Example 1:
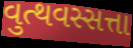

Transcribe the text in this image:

વુત્થવસ્સત્તા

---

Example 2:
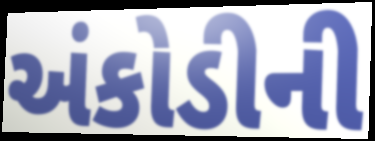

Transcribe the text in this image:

અંકોડીની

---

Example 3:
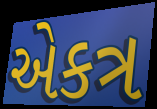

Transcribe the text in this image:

એકત્ર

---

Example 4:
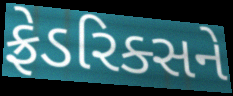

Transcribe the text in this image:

ફ્રેડરિક્સને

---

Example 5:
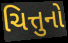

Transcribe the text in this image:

ચિત્તુનો